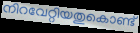
നിറവേറ്റിയതുകൊണ്ട്